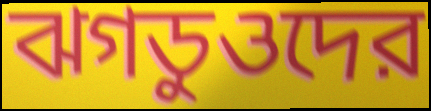
ঝগডুওদের